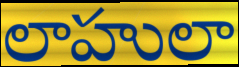
లాహులా